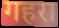
गहरा